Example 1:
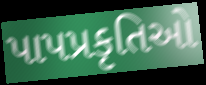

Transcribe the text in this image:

પાપપ્રકૃતિઓ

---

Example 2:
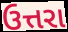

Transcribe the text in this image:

ઉત્તરા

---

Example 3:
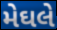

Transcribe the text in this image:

મેઘલે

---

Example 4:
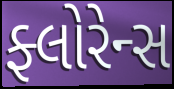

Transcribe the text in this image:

ફ્લોરેન્સ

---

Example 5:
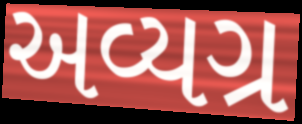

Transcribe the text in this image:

અવ્યગ્ર